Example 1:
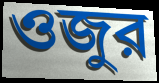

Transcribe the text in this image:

ওজুর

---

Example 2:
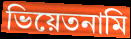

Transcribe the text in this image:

ভিয়েতনামি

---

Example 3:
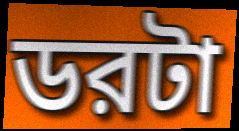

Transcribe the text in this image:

ডরটা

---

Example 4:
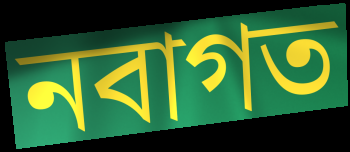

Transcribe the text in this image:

নবাগত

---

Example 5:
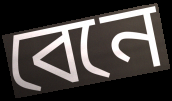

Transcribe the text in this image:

বেনে